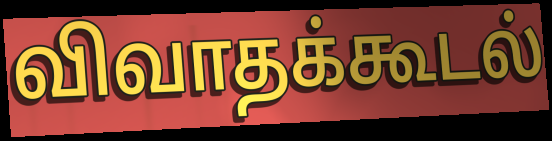
விவாதக்கூடல்